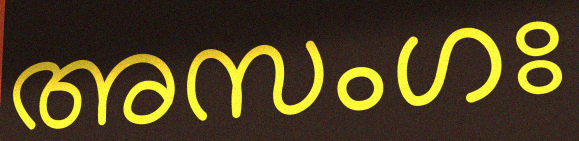
അസംഗഃ